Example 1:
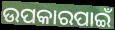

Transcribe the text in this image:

ଉପକାରପାଇଁ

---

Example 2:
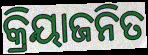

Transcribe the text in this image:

କ୍ରିୟାଜନିତ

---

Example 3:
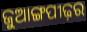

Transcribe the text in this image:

ଜୁଆଙ୍ଗପୀଢ଼ର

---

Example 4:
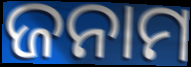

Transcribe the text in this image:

ଜନାମ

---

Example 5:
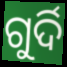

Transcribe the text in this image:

ଗୁର୍ଦି